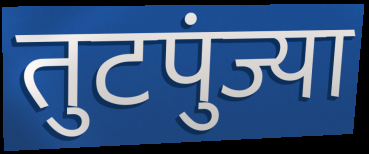
तुटपुंज्या